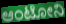
ಆಂಟೋನಿ